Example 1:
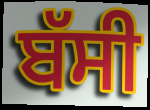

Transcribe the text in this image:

ਬੱਸੀ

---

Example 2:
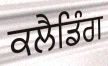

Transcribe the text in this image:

ਕਲੈਡਿੰਗ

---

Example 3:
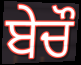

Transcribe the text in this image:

ਬੇਚੌ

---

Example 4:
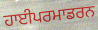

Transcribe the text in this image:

ਹਾਈਪਰਮਾਡਰਨ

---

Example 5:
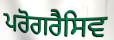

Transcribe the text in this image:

ਪਰੋਗਰੈਸਿਵ